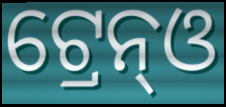
ଟ୍ରେନ୍ଓ